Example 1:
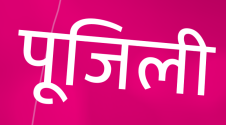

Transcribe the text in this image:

पूजिली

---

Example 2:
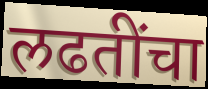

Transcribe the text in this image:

लढतींचा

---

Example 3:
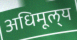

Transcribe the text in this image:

अधिमूल्य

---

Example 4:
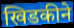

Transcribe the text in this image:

खिडकीने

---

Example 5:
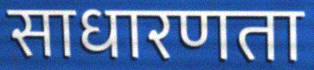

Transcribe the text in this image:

साधारणता